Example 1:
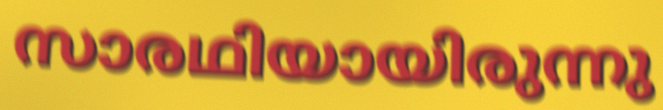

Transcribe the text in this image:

സാരഥിയായിരുന്നു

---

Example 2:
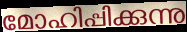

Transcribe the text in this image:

മോഹിപ്പിക്കുന്നു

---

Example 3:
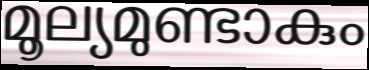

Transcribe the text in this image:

മൂല്യമുണ്ടാകും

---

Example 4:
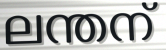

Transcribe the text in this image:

ലന്തന്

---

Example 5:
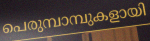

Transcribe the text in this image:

പെരുമ്പാമ്പുകളായി